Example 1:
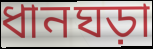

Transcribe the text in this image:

ধানঘড়া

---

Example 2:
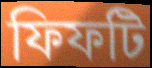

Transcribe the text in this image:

ফিফটি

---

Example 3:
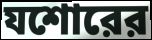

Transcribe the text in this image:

যশোরের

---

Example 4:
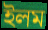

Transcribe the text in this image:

ইলম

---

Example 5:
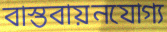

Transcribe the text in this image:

বাস্তবায়নযোগ্য